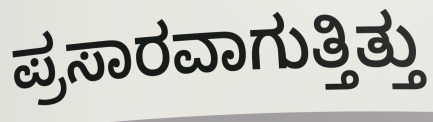
ಪ್ರಸಾರವಾಗುತ್ತಿತ್ತು